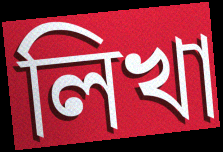
লিখা